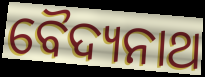
ବୈଦ୍ୟନାଥ